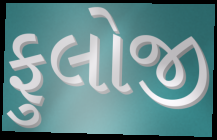
ફુલોજી